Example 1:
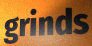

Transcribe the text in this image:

grinds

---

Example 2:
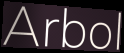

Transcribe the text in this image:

Arbol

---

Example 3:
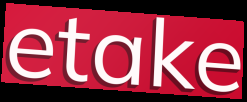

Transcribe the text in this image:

etake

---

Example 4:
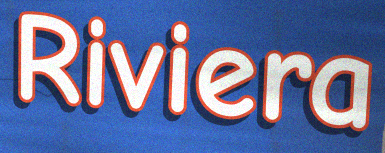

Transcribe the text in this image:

Riviera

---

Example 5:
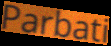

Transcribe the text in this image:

Parbati